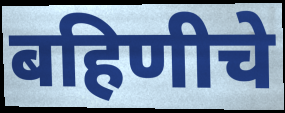
बहिणीचे